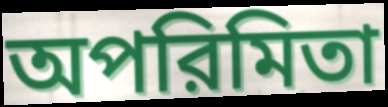
অপরিমিতা